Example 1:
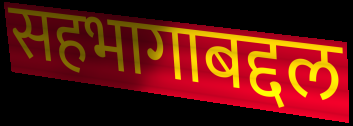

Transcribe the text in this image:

सहभागाबद्दल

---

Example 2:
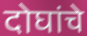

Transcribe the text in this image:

दोघांचे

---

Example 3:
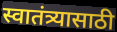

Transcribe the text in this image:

स्वातंत्र्यासाठी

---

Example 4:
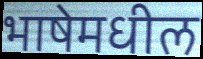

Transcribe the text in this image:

भाषेमधील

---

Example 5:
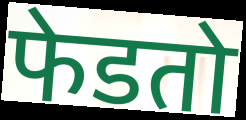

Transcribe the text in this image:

फेडतो